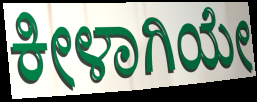
ಕೀಳಾಗಿಯೇ